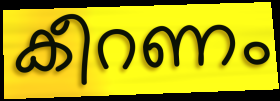
കീറണം